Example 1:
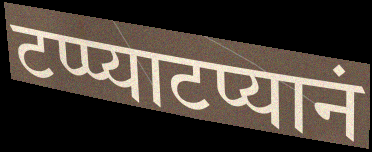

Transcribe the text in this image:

टप्प्याटप्यानं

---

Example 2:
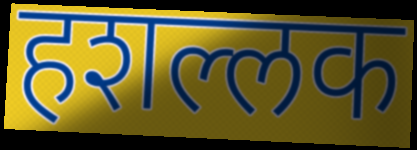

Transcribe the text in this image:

हशल्लक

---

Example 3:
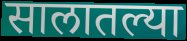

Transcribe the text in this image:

सालातल्या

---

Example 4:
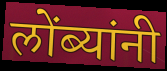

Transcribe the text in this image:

लोंब्यांनी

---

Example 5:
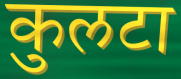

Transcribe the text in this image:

कुलटा